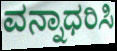
ವನ್ನಾಧರಿಸಿ